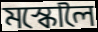
মস্কোলৈ